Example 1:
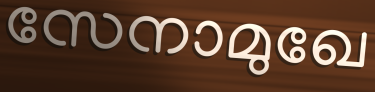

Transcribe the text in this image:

സേനാമുഖേ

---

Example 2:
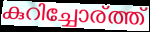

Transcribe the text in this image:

കുറിച്ചോര്ത്ത്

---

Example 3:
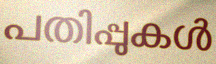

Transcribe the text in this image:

പതിപ്പുകൾ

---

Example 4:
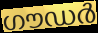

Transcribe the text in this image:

ഗൗഡർ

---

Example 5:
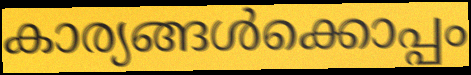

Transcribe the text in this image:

കാര്യങ്ങൾക്കൊപ്പം